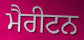
ਮੈਰੀਟਨ